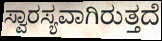
ಸ್ವಾರಸ್ಯವಾಗಿರುತ್ತದೆ